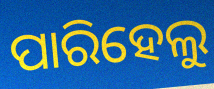
ପାରିହେଲୁ